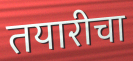
तयारीचा